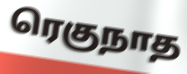
ரெகுநாத